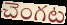
చెంగట